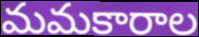
మమకారాల